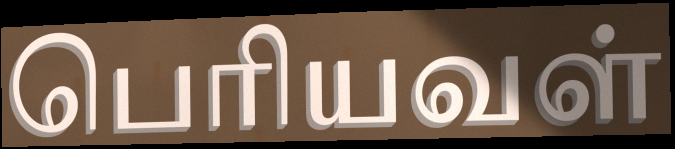
பெரியவள்